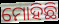
ମୋହିଛି